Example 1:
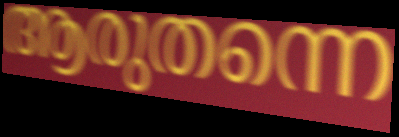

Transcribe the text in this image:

ആരുതന്നെ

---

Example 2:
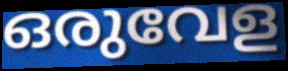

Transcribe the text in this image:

ഒരുവേള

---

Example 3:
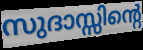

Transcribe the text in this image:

സുദാസ്സിന്റെ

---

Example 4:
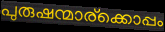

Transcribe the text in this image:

പുരുഷന്മാര്ക്കൊപ്പം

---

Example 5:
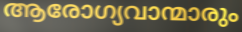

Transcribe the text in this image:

ആരോഗ്യവാന്മാരും